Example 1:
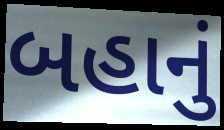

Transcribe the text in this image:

બહાનું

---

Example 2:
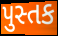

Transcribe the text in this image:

પુસ્તક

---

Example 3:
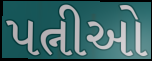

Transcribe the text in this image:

પત્નીઓ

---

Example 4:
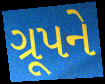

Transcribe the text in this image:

ગ્રૂપને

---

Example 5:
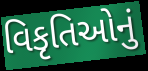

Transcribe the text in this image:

વિકૃતિઓનું